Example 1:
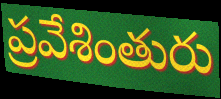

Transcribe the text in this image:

ప్రవేశింతురు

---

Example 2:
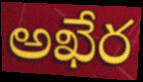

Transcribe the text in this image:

అఖేర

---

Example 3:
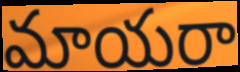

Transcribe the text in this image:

మాయరా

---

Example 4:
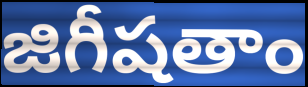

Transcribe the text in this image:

జిగీషతాం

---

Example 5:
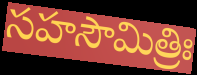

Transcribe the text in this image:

సహసౌమిత్రిః